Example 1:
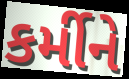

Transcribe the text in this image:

કર્મીને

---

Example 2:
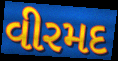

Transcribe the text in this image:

વીરમદ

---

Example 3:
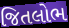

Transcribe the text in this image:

જિતલોભ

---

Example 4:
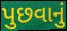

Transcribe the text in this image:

પુછવાનું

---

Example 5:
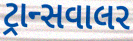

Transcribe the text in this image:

ટ્રાન્સવાલર